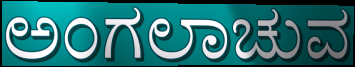
ಅಂಗಲಾಚುವ